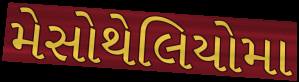
મેસોથેલિયોમા